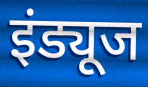
इंड्यूज